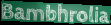
Bambhrolia